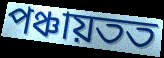
পঞ্চায়তত